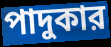
পাদুকার